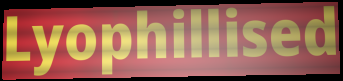
Lyophillised